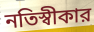
নতিস্বীকার